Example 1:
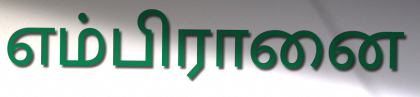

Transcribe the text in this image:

எம்பிரானை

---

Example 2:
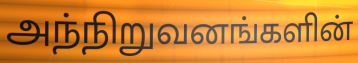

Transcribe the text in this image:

அந்நிறுவனங்களின்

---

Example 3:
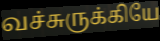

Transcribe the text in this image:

வச்சுருக்கியே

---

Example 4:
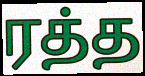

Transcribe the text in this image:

ரத்த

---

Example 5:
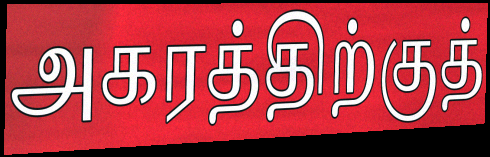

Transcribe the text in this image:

அகரத்திற்குத்